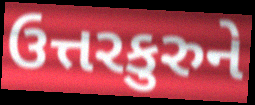
ઉત્તરકુરુને